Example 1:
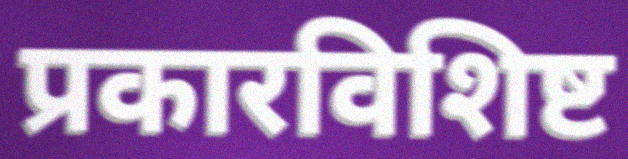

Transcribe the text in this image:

प्रकारविशिष्ट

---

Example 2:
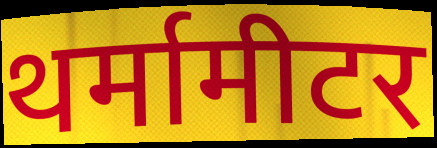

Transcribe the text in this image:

थर्मामीटर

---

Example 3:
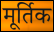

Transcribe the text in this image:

मूर्तिक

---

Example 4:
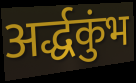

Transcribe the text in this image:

अर्द्धकुंभ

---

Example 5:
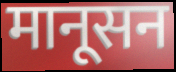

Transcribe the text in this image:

मानूसन